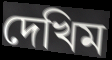
দেখিম